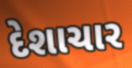
દેશાચાર